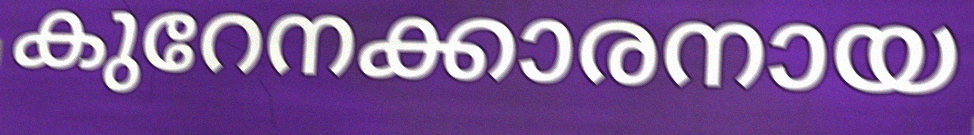
കുറേനക്കാരനായ